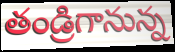
తండ్రిగానున్న